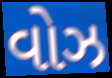
વોઝ